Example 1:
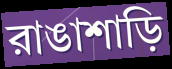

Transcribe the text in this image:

রাঙাশাড়ি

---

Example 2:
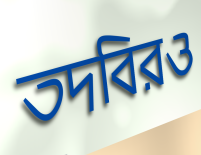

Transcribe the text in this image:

তদবিরও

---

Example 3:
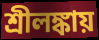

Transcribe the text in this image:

শ্রীলঙ্কায়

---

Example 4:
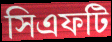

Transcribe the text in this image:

সিএফটি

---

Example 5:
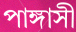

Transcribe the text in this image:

পাঙ্গাসী